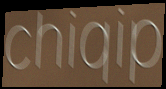
chiqip